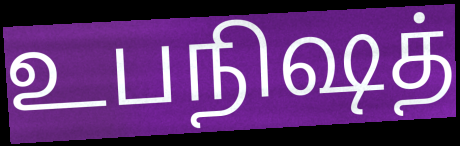
உபநிஷத்